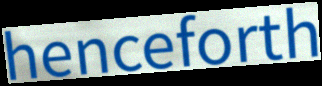
henceforth